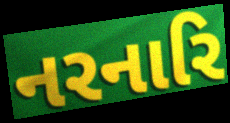
નરનારિ